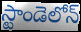
స్టాండెలోన్